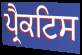
ਪ੍ਰੈਕਟਿਸ